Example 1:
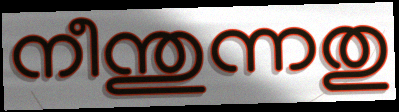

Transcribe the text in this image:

നീന്തുന്നതു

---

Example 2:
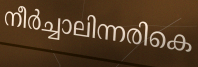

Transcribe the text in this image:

നീർച്ചാലിന്നരികെ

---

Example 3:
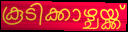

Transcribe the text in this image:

കൂടിക്കാഴ്ചയ്ക്ക്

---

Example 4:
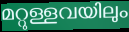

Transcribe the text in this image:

മറ്റുള്ളവയിലും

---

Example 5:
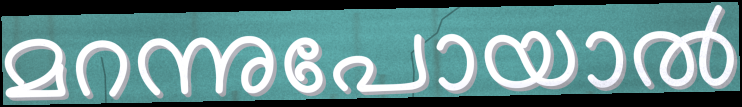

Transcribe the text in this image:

മറന്നുപോയാൽ